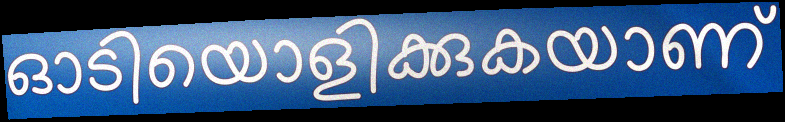
ഓടിയൊളിക്കുകയാണ്